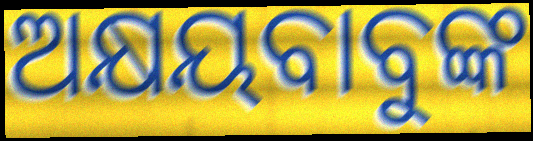
ଅକ୍ଷୟବାବୁଙ୍କ